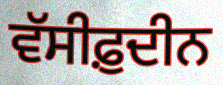
ਵੱਸੀਫ਼ੁਦੀਨ